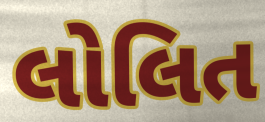
લોલિત